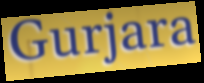
Gurjara